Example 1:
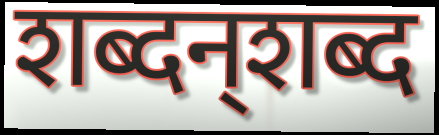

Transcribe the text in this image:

शब्दन्‌शब्द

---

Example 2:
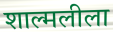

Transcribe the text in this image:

शाल्मलीला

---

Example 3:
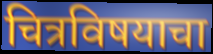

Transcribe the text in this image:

चित्रविषयाचा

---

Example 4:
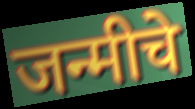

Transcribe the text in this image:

जन्मीचे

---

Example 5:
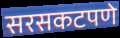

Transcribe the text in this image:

सरसकटपणे